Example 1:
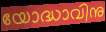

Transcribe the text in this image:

യോദ്ധാവിനു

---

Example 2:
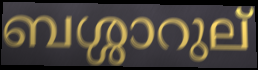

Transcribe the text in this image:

ബശ്ശാറുല്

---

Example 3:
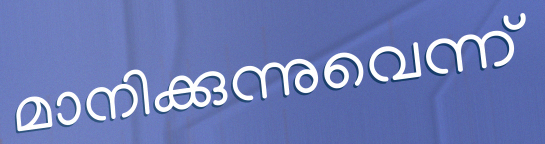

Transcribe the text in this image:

മാനിക്കുന്നുവെന്ന്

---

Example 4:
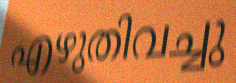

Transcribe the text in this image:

എഴുതിവച്ചു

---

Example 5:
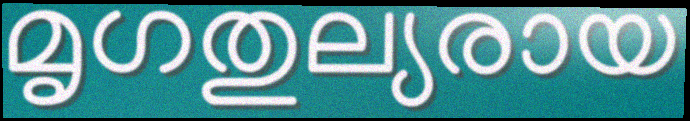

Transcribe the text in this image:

മൃഗതുല്യരായ